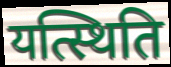
यत्स्थिति